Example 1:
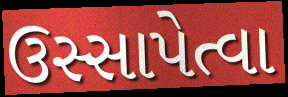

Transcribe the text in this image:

ઉસ્સાપેત્વા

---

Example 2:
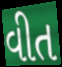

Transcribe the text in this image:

વીત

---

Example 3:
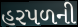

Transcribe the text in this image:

હરપળની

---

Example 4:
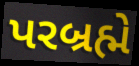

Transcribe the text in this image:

પરબ્રહ્મે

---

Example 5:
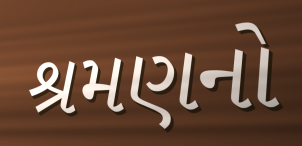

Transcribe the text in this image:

શ્રમણનો